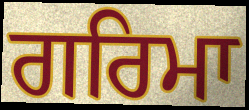
ਗਰਿਮਾ